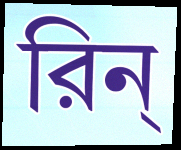
রিন্